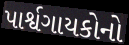
પાર્શ્વગાયકોનો